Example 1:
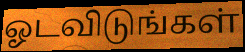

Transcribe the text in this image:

ஓடவிடுங்கள்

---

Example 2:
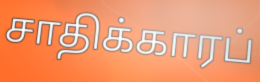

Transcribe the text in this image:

சாதிக்காரப்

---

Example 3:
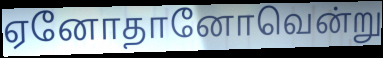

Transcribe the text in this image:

ஏனோதானோவென்று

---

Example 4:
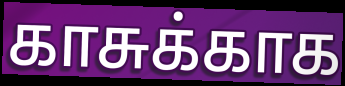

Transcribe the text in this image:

காசுக்காக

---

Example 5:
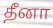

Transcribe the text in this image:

தீனா